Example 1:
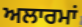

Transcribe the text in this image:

ਅਲਾਰਮਾਂ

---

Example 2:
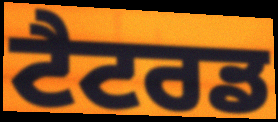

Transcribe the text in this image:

ਟੈਟਰਡ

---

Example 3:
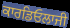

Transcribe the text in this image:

ਕਾਰਡਿਓਲਾਜੀ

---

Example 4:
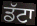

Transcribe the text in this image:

ਡੱਟਾ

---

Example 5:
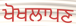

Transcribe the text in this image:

ਖੋਖਲਾਪਣ